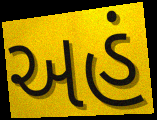
અહં